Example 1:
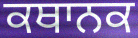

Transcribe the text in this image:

ਕਥਾਨਕ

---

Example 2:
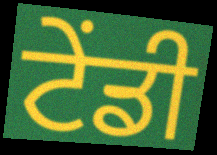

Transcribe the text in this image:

ਟੇਂਡੀ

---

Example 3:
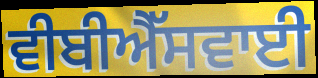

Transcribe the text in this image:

ਵੀਬੀਐੱਸਵਾਈ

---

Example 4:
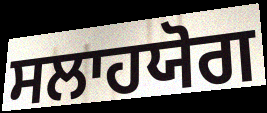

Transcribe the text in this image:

ਸਲਾਹਯੋਗ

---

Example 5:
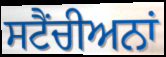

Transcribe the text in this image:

ਸਟੈਂਚੀਅਨਾਂ